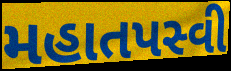
મહાતપસ્વી